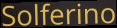
Solferino